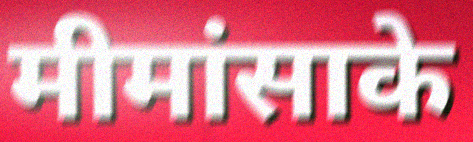
मीमांसाके